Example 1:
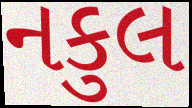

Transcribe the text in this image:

નકુલ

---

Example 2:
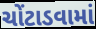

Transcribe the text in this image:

ચોંટાડવામાં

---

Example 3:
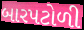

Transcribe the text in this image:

બારપટોળી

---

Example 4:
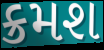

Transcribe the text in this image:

ક્રમશ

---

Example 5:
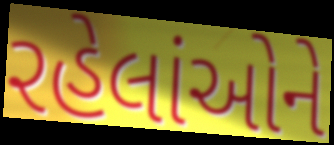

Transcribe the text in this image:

રહેલાંઓને